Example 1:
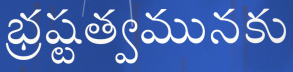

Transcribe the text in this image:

భ్రష్టత్వమునకు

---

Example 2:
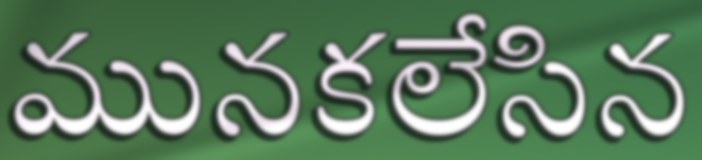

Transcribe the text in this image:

మునకలేసిన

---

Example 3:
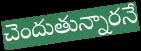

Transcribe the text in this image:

చెందుతున్నారనే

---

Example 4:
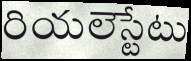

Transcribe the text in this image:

రియలెస్టేటు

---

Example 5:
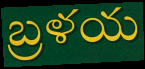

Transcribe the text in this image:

బ్రళయ